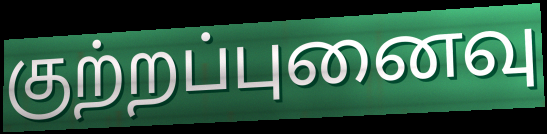
குற்றப்புனைவு